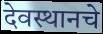
देवस्थानचे